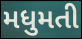
મધુમતી